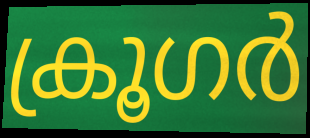
ക്രൂഗർ